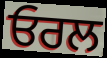
ਓਰਲ